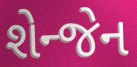
શેન્જેન